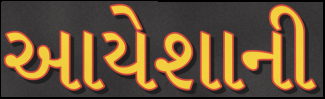
આયેશાની